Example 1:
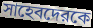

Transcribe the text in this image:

সাহেবদেরকে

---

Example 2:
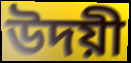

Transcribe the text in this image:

উদয়ী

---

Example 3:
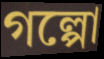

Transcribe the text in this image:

গল্পো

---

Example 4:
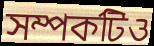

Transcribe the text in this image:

সম্পর্কটিও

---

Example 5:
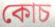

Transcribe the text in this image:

কোচ